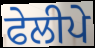
ਫੇਲੀਪੇ